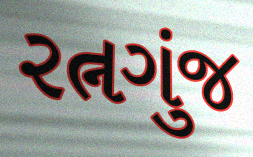
રત્નગુંજ